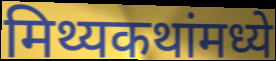
मिथ्यकथांमध्ये